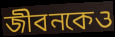
জীবনকেও